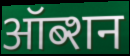
ऑब्शन